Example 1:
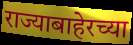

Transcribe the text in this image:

राज्याबाहेरच्या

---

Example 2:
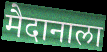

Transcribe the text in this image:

मैदानाला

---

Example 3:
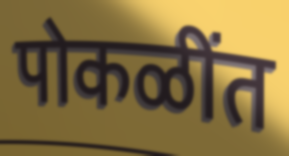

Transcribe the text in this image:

पोकळींत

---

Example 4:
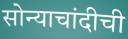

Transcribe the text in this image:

सोन्याचांदीची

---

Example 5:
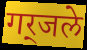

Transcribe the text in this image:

गर्जले